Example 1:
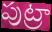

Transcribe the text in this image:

పుట్రా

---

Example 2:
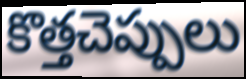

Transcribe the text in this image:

కొత్తచెప్పులు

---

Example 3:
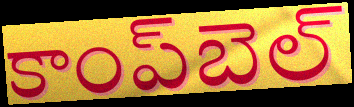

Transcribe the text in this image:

కాంప్‌బెల్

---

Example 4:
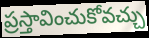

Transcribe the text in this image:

ప్రస్తావించుకోవచ్చు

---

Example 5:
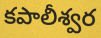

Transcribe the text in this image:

కపాలీశ్వర